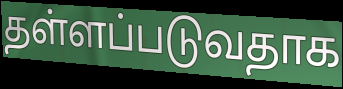
தள்ளப்படுவதாக